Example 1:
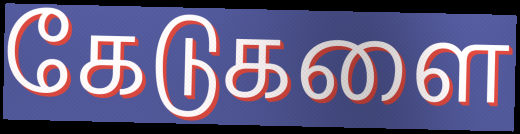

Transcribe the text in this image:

கேடுகளை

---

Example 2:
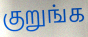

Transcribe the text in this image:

குறுங்க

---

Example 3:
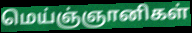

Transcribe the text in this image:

மெய்ஞ்ஞானிகள்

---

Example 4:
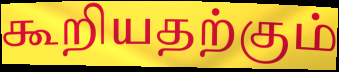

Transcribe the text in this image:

கூறியதற்கும்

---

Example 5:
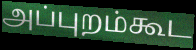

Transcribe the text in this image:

அப்புறம்கூட